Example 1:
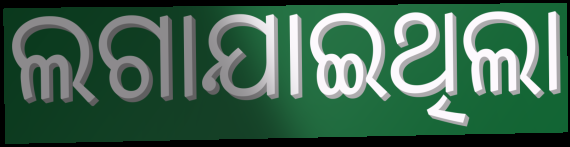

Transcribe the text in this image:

ଲଗାଯାଇଥିଲା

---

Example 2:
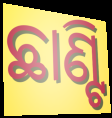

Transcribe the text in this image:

ଛାଣ୍ଟି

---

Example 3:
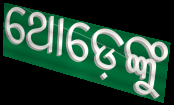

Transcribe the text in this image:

ଥୋଡ଼େଙ୍କୁ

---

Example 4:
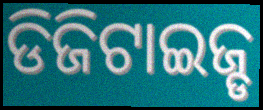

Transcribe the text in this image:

ଡିଜିଟାଇଜ୍ଡ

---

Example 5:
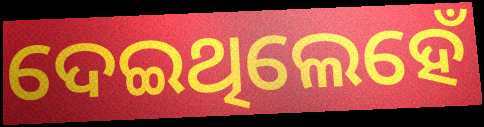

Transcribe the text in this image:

ଦେଇଥିଲେହେଁ